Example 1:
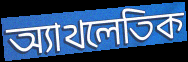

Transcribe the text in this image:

অ্যাথলেতিক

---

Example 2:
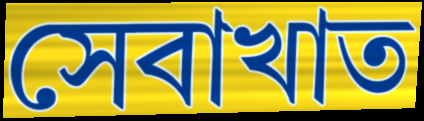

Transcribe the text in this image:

সেবাখাত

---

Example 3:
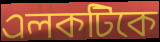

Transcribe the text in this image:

এলকটিকে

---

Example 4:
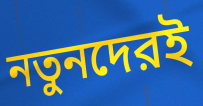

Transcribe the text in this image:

নতুনদেরই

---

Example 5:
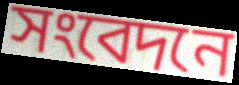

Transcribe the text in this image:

সংবেদনে